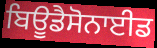
ਬਿਊਡੈਸੋਨਾਈਡ